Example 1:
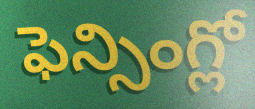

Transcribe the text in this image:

ఫెన్సింగ్లో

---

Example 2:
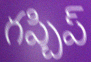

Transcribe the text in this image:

గప్చిప్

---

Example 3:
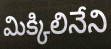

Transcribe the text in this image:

మిక్కిలినేని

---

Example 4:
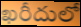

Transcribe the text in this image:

ఖరీదులో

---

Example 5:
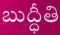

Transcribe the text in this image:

బుద్ధీతి